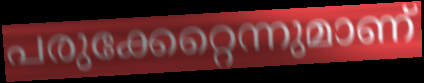
പരുക്കേറ്റെന്നുമാണ്